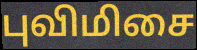
புவிமிசை